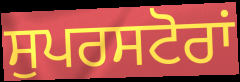
ਸੁਪਰਸਟੋਰਾਂ